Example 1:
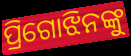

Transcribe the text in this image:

ପ୍ରିଗୋଝିନଙ୍କୁ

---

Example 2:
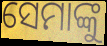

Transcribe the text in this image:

ସେମାଙ୍କୁ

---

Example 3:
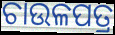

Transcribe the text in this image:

ଚାଉଳପତ୍ର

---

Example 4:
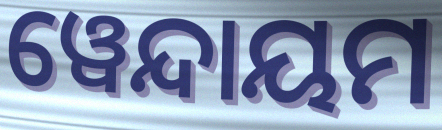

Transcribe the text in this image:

ୱେନ୍ଦାୟମ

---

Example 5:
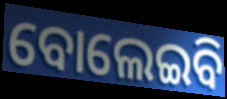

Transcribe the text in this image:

ବୋଲେଇବି